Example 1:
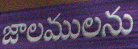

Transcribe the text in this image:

జాలములను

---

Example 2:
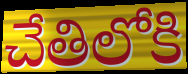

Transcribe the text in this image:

చేతిలోకి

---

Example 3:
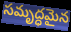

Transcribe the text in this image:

సమృద్ధమైన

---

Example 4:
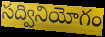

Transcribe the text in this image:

సద్వినియోగం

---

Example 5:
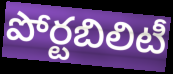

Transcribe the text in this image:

పోర్టబిలిటీ